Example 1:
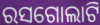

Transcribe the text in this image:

ରସଗୋଲାଟି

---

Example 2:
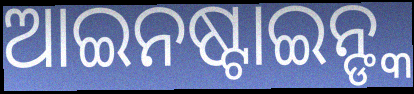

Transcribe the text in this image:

ଆଇନଷ୍ଟାଇନ୍ଙ୍କ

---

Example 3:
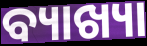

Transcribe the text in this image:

ବ୍ୟାଖ୍ୟା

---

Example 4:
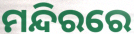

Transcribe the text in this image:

ମନ୍ଦିରରେ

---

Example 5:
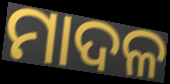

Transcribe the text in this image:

ମାଦଳ